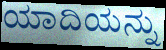
ಯಾದಿಯನ್ನು